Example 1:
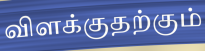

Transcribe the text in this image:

விளக்குதற்கும்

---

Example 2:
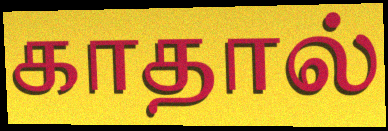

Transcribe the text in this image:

காதால்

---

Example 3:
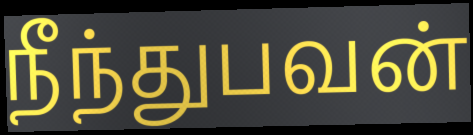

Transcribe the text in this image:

நீந்துபவன்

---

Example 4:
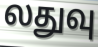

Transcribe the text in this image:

லதுவு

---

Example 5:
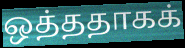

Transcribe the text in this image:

ஒத்ததாகக்